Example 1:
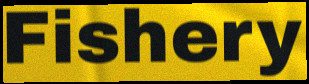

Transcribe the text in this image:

Fishery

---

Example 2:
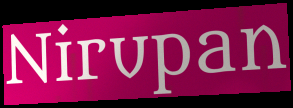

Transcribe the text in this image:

Nirupan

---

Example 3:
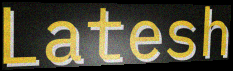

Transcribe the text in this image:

Latesh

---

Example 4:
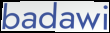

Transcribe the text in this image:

badawi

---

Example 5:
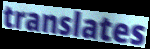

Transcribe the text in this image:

translates